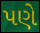
પણે